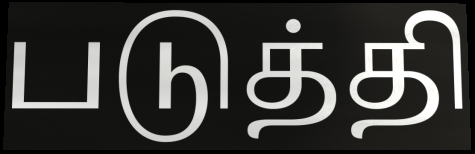
படுத்தி